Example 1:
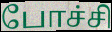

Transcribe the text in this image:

போச்சி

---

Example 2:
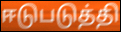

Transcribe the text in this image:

ஈடுபடுத்தி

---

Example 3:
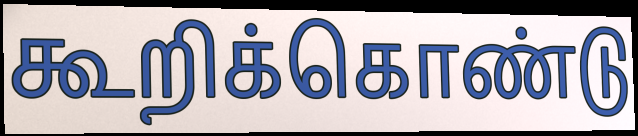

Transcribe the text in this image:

கூறிக்கொண்டு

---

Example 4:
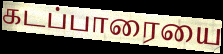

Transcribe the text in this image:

கடப்பாரையை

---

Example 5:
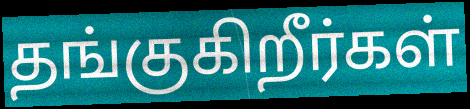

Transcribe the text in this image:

தங்குகிறீர்கள்